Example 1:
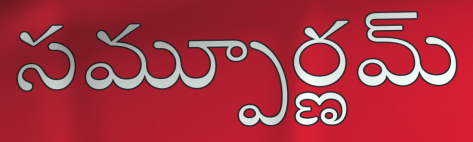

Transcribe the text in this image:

సమ్పూర్ణమ్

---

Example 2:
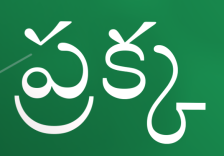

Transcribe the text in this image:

ప్రక్క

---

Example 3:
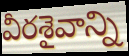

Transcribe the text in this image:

వీరశైవాన్ని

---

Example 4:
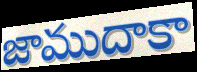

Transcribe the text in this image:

జాముదాకా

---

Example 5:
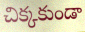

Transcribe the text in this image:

చిక్కకుండా